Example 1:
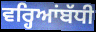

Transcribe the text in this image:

ਵਰ੍ਹਿਆਂਬੱਧੀ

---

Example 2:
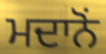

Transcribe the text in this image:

ਮਦਾਨੋਂ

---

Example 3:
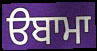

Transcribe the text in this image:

ੳਬਾਮਾ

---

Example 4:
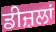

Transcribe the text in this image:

ਡੀਜ਼ਲਾਂ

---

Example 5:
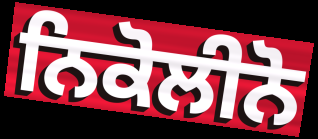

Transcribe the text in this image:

ਨਿਕੋਲੀਨੋ